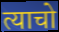
त्याचो